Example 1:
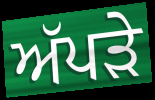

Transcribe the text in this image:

ਅੱਪੜੇ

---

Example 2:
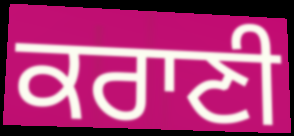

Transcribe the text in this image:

ਕਰਾਣੀ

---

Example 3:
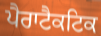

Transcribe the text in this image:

ਪੈਰਾਟੈਕਟਿਕ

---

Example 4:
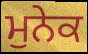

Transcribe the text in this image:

ਮੁਨੇਕ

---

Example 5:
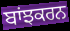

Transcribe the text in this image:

ਬਾਂਝਕਰਨ